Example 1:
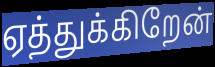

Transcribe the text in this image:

ஏத்துக்கிறேன்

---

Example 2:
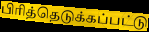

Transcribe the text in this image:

பிரித்தெடுக்கப்பட்டு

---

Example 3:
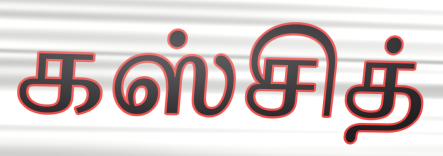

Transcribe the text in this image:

கஸ்சித்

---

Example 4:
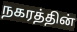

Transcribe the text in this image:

நகரத்தின்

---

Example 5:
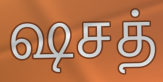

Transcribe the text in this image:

ஷசத்